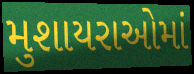
મુશાયરાઓમાં